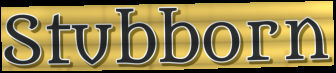
Stubborn